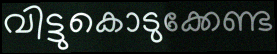
വിട്ടുകൊടുക്കേണ്ട